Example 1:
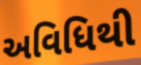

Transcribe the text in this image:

અવિધિથી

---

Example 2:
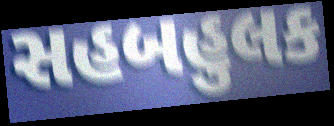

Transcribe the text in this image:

સહબહુલક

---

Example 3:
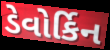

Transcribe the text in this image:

ડેવોર્કિન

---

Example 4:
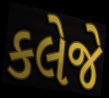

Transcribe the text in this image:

કલેજે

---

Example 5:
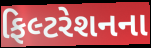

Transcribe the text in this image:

ફિલ્ટરેશનના